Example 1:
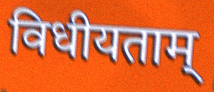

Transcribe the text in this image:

विधीयताम्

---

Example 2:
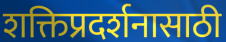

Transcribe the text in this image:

शक्तिप्रदर्शनासाठी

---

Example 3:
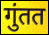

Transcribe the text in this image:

गुंतत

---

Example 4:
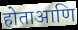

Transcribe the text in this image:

होताआणि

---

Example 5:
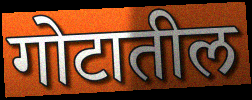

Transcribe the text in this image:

गोटातील